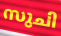
സുചി